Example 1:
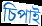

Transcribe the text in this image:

চিপাই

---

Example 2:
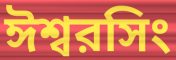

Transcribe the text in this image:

ঈশ্বরসিং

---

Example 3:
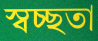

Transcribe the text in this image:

স্বচ্ছতা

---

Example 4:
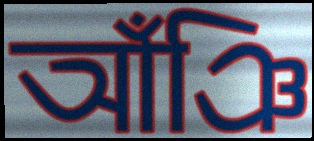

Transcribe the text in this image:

আঁঞি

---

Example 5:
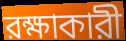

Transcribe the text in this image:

রক্ষাকারী